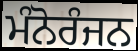
ਮੰਨੋਰੰਜਨ